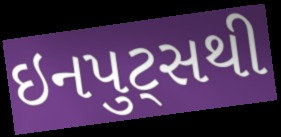
ઇનપુટ્સથી